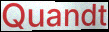
Quandt